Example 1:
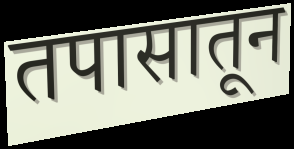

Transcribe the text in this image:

तपासातून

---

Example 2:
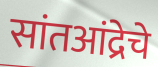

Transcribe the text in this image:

सांतआंद्रेचे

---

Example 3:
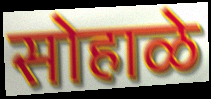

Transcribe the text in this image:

सोहाळे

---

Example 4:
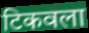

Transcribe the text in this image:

टिकवला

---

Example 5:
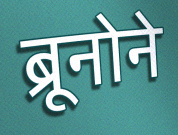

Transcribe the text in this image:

ब्रूनोने